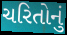
ચરિતોનું